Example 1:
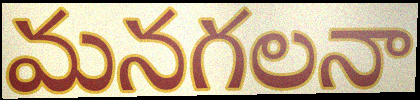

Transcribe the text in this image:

మనగలనా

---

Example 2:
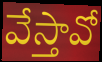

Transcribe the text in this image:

వేస్తావో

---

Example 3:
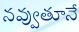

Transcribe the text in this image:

నవ్వుతూనే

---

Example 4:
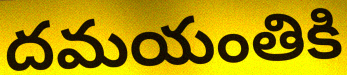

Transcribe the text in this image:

దమయంతికి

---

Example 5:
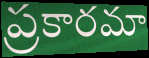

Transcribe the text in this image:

ప్రకారమా